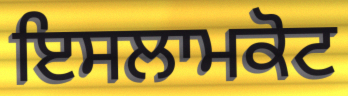
ਇਸਲਾਮਕੋਟ